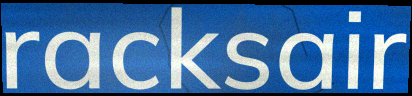
racksair